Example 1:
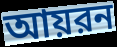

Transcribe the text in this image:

আয়রন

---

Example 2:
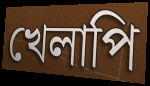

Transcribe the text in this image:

খেলাপি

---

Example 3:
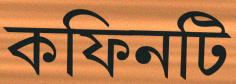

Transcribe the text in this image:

কফিনটি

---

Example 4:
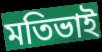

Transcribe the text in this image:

মতিভাই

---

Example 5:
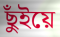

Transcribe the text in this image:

ছুঁইয়ে